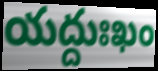
యద్దుఃఖం